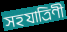
সহযাত্রিণী